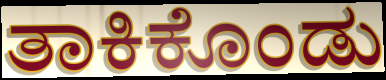
ತಾಕಿಕೊಂಡು